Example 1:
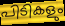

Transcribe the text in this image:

പിടികളും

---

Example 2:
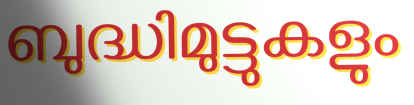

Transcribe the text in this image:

ബുദ്ധിമുട്ടുകളും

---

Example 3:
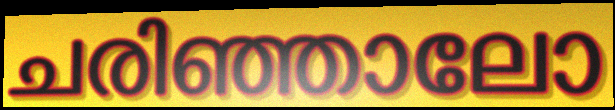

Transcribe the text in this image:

ചരിഞ്ഞാലോ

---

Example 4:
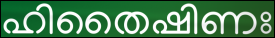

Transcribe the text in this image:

ഹിതൈഷിണഃ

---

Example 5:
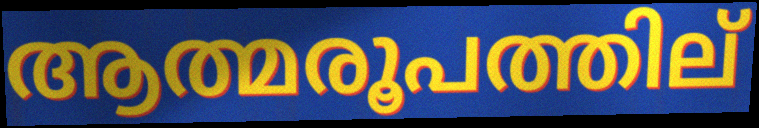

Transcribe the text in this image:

ആത്മരൂപത്തില്